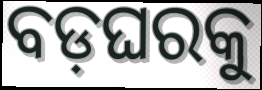
ବଡ଼ଘରକୁ